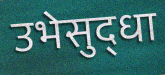
उभेसुद्धा